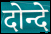
दोन्दे